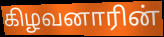
கிழவனாரின்